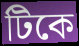
টিকে